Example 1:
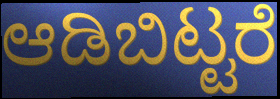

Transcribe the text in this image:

ಆಡಿಬಿಟ್ಟರೆ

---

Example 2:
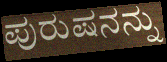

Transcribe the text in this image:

ಪುರುಷನನ್ನು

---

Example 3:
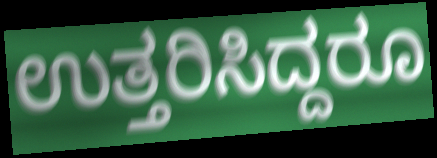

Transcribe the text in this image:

ಉತ್ತರಿಸಿದ್ದರೂ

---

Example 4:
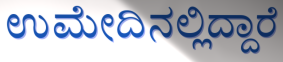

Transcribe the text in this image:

ಉಮೇದಿನಲ್ಲಿದ್ದಾರೆ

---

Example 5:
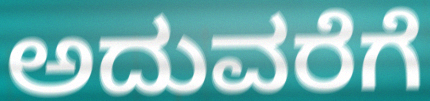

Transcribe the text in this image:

ಅದುವರೆಗೆ